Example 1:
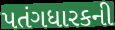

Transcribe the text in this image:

પતંગધારકની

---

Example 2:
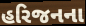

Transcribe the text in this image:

હરિજનના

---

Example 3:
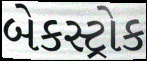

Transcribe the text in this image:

બેકસ્ટ્રોક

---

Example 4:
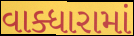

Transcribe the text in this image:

વાક્ધારામાં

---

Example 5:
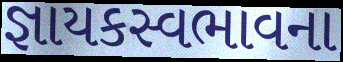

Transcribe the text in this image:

જ્ઞાયકસ્વભાવના